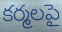
కర్మలపై